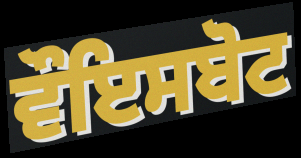
ਵੌਇਸਬੋਟ